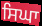
ਸਿਘਾ